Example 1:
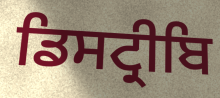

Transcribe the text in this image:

ਡਿਸਟ੍ਰੀਬਿ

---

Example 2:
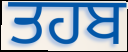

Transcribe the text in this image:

ਤਹਬ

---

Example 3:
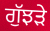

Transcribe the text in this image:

ਗੁੱਝੜੇ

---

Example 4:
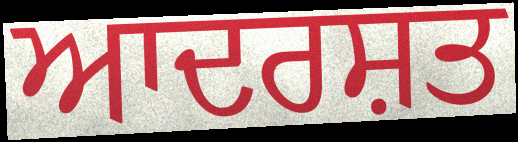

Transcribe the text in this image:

ਆਦਰਸ਼ਤ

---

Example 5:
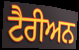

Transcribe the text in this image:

ਟੈਰੀਅਨ